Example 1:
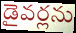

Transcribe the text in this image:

డైవర్లను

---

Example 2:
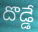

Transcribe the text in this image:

దొడ్డే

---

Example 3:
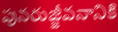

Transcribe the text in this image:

పునరుజ్జీవనానికి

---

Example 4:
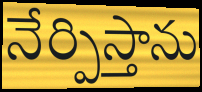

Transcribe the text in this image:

నేర్పిస్తాను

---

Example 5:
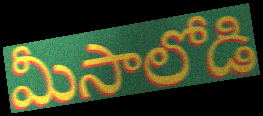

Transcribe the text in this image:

మీసాలోడి